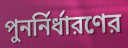
পুনর্নির্ধারণের